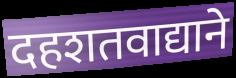
दहशतवाद्याने